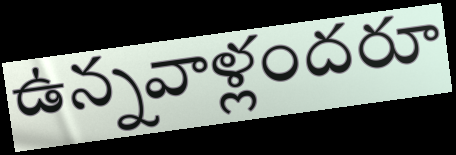
ఉన్నవాళ్లందరూ